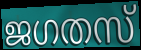
ജഗതസ്